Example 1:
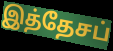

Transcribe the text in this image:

இத்தேசப்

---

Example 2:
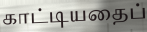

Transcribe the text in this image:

காட்டியதைப்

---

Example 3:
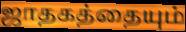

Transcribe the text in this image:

ஜாதகத்தையும்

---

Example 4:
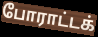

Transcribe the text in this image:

போராட்டக்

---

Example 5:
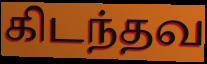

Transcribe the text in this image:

கிடந்தவ